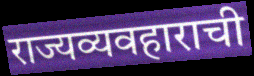
राज्यव्यवहाराची